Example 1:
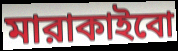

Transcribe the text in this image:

মারাকাইবো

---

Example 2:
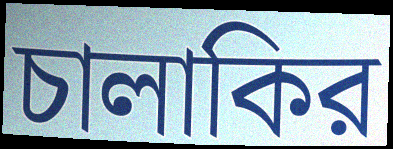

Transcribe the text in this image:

চালাকির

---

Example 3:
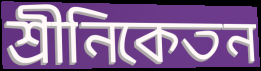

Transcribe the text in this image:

শ্রীনিকেতন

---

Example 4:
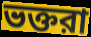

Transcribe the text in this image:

ভক্তরা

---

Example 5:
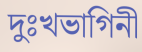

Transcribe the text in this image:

দুঃখভাগিনী